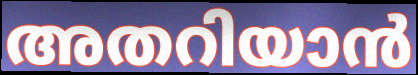
അതറിയാൻ